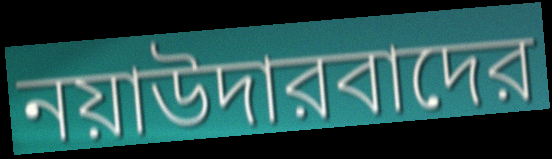
নয়াউদারবাদের